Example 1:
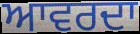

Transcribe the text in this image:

ਆਵਰਦਾ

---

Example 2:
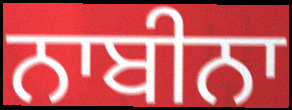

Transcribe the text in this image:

ਨਾਬੀਨਾ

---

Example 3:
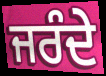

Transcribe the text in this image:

ਜਰੰਦੇ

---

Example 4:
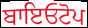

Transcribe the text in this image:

ਬਾਇਓਟੋਪ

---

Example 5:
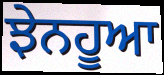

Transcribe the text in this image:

ਝੇਨਹੂਆ